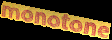
monotone